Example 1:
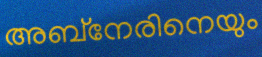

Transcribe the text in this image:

അബ്നേരിനെയും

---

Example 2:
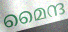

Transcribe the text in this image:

മൈന്ദ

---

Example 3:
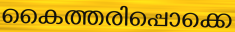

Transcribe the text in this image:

കൈത്തരിപ്പൊക്കെ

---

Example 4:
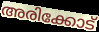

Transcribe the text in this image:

അരിക്കോട്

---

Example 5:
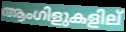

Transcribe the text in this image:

ആംഗിളുകളില്